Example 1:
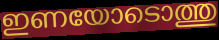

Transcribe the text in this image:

ഇണയോടൊത്തു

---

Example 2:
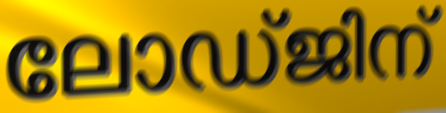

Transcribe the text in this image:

ലോഡ്ജിന്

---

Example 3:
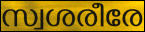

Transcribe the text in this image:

സ്വശരീരേ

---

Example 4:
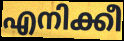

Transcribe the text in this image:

എനിക്കീ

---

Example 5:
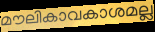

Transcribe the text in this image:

മൗലികാവകാശമല്ല